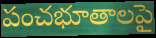
పంచభూతాలపై